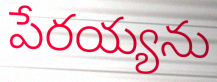
పేరయ్యను